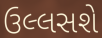
ઉલ્લસશે